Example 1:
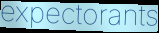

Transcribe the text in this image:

expectorants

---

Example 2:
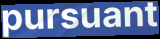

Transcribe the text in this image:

pursuant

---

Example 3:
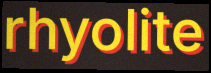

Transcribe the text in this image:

rhyolite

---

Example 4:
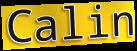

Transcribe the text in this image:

Calin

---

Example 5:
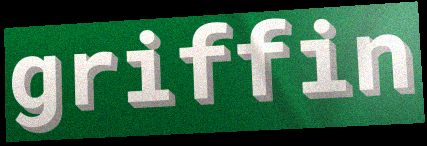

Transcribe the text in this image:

griffin